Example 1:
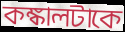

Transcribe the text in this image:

কঙ্কালটাকে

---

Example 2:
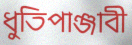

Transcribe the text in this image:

ধুতিপাঞ্জাবী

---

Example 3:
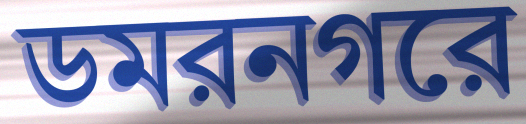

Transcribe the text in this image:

ডমরনগরে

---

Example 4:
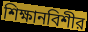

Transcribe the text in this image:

শিক্ষানবিশীর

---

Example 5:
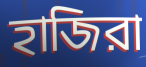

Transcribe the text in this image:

হাজিরা